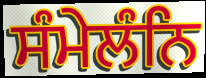
ਸੰਮੇਲੰਨਿ